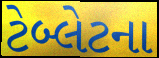
ટેબ્લેટના